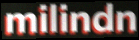
milindn